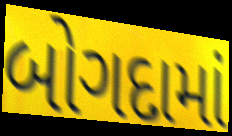
બોગદામાં